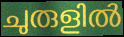
ചുരുളിൽ